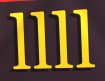
llll